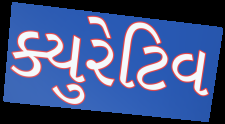
ક્યુરેટિવ